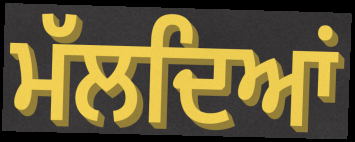
ਮੱਲਦਿਆਂ